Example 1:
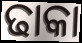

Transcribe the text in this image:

ଢାକା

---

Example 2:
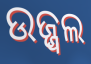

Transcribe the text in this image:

ଉଜ୍ଜ୍ୱଲ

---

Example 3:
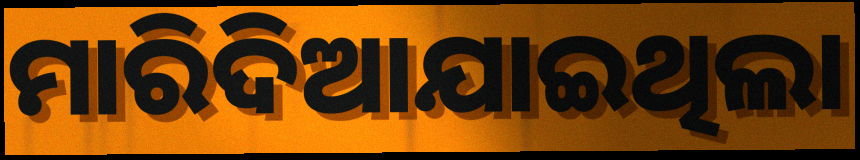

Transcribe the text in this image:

ମାରିଦିଆଯାଇଥିଲା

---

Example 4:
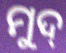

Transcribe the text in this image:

ମୁଦ୍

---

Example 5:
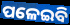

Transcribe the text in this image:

ପଳେଇବି